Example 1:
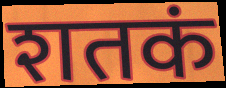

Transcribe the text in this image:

शतकं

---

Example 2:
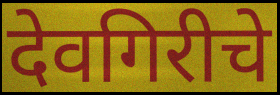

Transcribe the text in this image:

देवगिरीचे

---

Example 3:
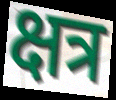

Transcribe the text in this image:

क्षत्र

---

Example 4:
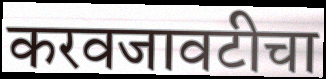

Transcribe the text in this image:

करवजावटीचा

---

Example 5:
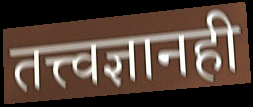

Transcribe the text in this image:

तत्त्वज्ञानही